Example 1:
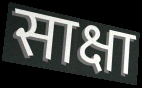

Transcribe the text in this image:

साक्षा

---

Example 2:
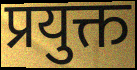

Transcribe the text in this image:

प्रयुक्त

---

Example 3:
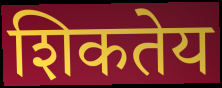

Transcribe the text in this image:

शिकतेय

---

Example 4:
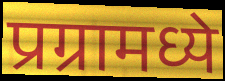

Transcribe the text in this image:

प्रग्रामध्ये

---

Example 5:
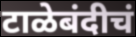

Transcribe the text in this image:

टाळेबंदीचं